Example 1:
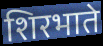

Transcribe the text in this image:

शिरभाते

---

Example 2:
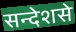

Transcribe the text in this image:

सन्देशसे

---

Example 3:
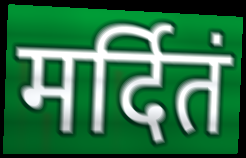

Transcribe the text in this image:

मर्दितं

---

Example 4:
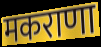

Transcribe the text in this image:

मकराणा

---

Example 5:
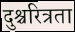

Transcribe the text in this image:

दुश्चरित्रता